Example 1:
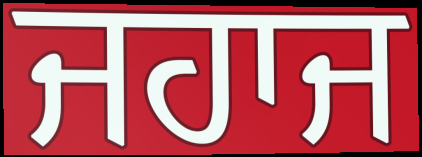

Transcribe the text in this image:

ਜਹਾਜ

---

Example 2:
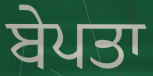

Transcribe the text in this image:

ਬੇਪਤਾ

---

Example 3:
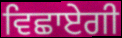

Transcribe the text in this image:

ਵਿਛਾਏਗੀ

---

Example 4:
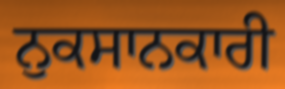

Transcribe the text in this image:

ਨੁਕਸਾਨਕਾਰੀ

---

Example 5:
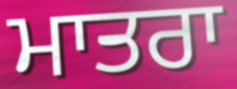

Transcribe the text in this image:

ਮਾਤਰਾ